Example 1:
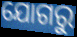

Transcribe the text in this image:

ଯୋଗରୁ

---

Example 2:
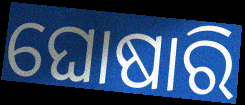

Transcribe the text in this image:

ଘୋଷାରି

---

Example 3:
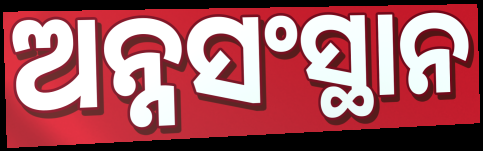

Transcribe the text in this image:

ଅନ୍ନସଂସ୍ଥାନ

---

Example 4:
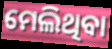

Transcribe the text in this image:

ମେଲିଥିବା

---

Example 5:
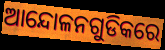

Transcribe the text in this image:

ଆନ୍ଦୋଳନଗୁଡିକରେ